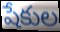
షేకుల